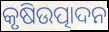
କୃଷିଉତ୍ପାଦନ